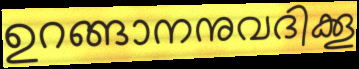
ഉറങ്ങാനനുവദിക്കൂ